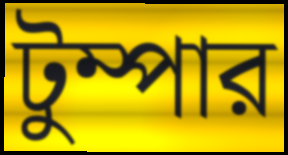
টুম্পার